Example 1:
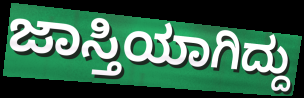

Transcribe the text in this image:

ಜಾಸ್ತಿಯಾಗಿದ್ದು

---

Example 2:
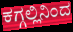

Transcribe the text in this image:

ಕಗ್ಗಲ್ಲಿನಿಂದ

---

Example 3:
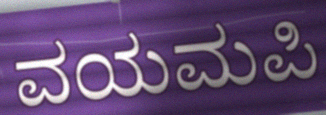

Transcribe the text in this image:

ವಯಮಪಿ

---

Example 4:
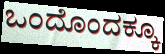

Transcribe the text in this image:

ಒಂದೊಂದಕ್ಕೂ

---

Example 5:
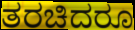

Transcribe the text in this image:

ತರಚಿದರೂ